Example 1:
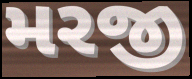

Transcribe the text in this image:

મરજી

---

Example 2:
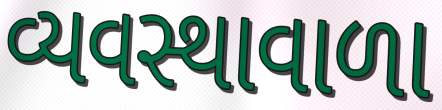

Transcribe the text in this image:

વ્યવસ્થાવાળા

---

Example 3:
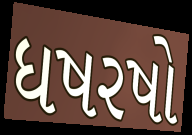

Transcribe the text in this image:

ધષરષો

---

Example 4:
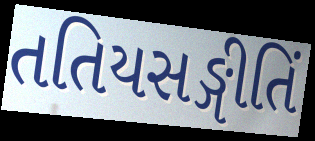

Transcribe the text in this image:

તતિયસઙ્ગીતિં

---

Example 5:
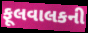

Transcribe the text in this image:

ફૂલવાલકની